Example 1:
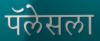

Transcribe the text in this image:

पॅलेसला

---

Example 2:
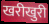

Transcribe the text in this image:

खरीखुरी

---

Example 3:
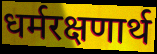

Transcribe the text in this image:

धर्मरक्षणार्थ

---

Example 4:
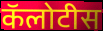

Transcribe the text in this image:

कॅलोटीस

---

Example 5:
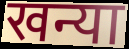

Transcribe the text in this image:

खन्या